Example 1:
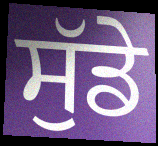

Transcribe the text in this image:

ਸੁੱਡੇ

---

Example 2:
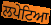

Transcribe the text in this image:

ਲਪੇਟਿਆ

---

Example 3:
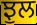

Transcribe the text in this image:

ਝੁਲ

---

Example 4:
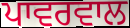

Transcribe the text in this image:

ਪਾਵਰਵਾਲ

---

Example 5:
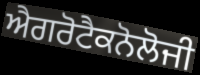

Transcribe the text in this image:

ਐਗਰੋਟੈਕਨੋਲੋਜੀ